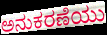
ಅನುಕರಣೆಯು